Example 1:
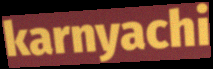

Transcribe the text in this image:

karnyachi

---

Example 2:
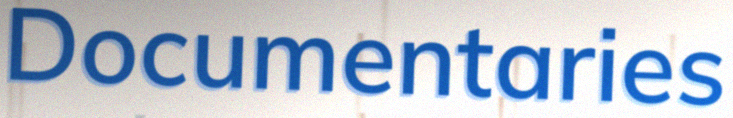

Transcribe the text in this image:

Documentaries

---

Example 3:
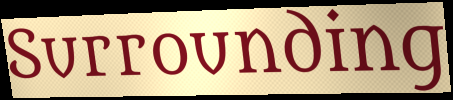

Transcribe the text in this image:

Surrounding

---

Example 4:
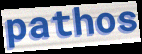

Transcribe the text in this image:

pathos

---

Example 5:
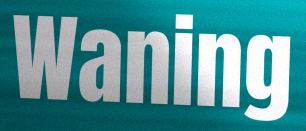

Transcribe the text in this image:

Waning